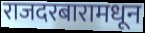
राजदरबारामधून